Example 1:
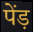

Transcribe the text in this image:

पेंड़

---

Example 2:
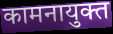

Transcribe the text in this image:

कामनायुक्त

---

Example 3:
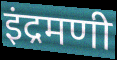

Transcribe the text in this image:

इंद्रमणी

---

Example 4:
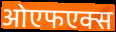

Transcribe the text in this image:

ओएफएक्स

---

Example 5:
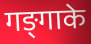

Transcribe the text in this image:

गङ्गाके